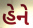
હેને